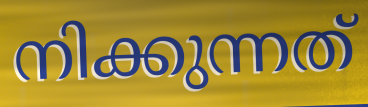
നിക്കുന്നത്